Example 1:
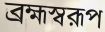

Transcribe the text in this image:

ব্রহ্মস্বরূপ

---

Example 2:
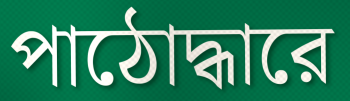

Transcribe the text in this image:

পাঠোদ্ধারে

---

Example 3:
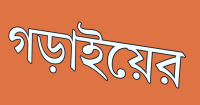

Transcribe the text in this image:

গড়াইয়ের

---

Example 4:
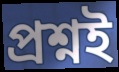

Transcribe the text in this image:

প্রশ্নই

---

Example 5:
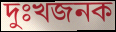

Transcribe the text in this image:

দুঃখজনক